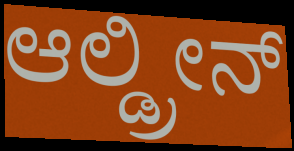
ಆಲ್ಡ್ರೀನ್